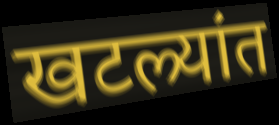
खटल्यांत